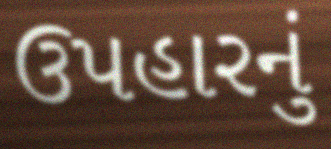
ઉપહારનું